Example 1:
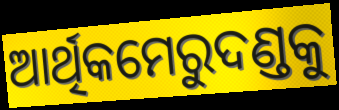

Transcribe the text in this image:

ଆର୍ଥିକମେରୁଦଣ୍ଡକୁ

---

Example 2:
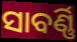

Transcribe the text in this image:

ସାବର୍ଣ୍ଣି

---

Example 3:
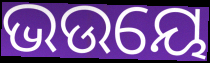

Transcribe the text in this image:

ଭଉୟେ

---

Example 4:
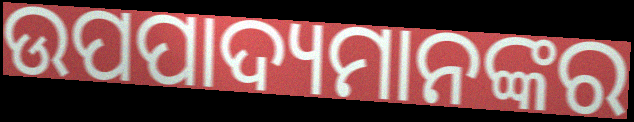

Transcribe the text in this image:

ଉପପାଦ୍ୟମାନଙ୍କର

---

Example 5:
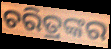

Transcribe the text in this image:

ଚରିତ୍ରଙ୍କର